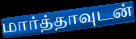
மார்த்தாவுடன்